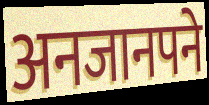
अनजानपने